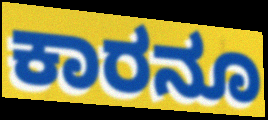
ಕಾರನೂ